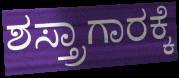
ಶಸ್ತ್ರಾಗಾರಕ್ಕೆ